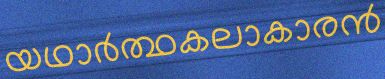
യഥാർത്ഥകലാകാരൻ